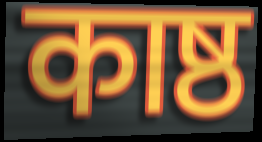
काष्ठ